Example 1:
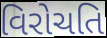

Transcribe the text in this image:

વિરોચતિ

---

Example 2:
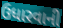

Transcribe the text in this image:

ઉધારવાની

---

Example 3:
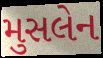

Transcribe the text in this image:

મુસલેન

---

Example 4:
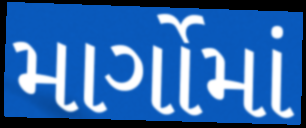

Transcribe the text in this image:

માર્ગોમાં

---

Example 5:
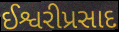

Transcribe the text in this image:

ઈશ્વરીપ્રસાદ